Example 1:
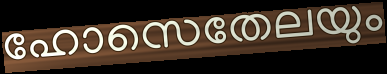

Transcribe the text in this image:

ഹോസെതേലയും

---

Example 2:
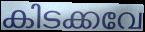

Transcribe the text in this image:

കിടക്കവേ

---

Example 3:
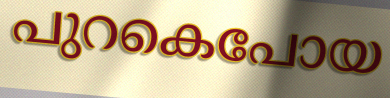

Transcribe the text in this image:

പുറകെപോയ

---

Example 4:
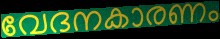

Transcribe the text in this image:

വേദനകാരണം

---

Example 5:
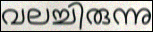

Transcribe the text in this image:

വലച്ചിരുന്നു